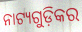
ନାଟ୍ୟଗୁଡ଼ିକର